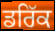
ਡਰਿੱਕ